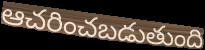
ఆచరించబడుతుంది